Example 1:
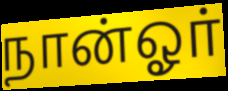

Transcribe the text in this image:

நான்ஓர்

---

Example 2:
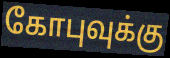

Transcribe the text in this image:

கோபுவுக்கு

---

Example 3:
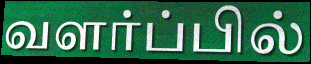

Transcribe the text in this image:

வளர்ப்பில்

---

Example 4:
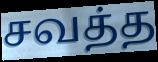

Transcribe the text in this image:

சவத்த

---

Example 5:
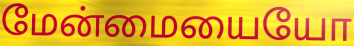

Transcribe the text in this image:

மேன்மையையோ